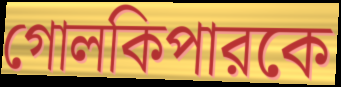
গোলকিপারকে